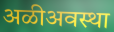
अळीअवस्था